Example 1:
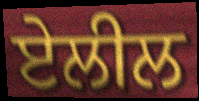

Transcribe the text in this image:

ਏਲੀਲ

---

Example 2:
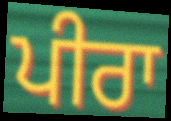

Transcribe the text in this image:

ਪੀਰਾ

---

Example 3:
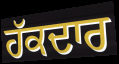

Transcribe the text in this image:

ਹੱਕਦਾਰ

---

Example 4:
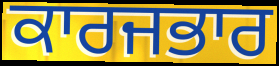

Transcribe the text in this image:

ਕਾਰਜਭਾਰ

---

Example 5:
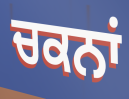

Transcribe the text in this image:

ਚਕਨਾਂ